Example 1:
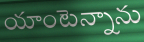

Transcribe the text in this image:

యాంటెన్నాను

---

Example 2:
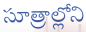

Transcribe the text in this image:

సూత్రాల్లోని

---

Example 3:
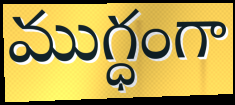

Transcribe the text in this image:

ముగ్ధంగా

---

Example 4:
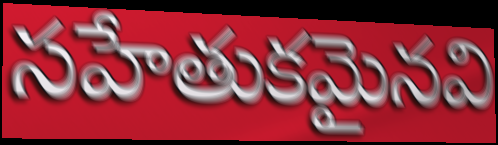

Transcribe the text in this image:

సహేతుకమైనవి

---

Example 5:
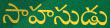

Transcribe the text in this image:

సాహసుడు